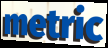
metric